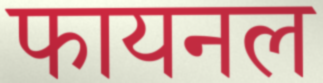
फायनल